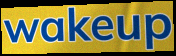
wakeup